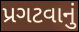
પ્રગટવાનું